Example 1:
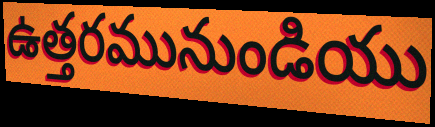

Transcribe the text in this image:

ఉత్తరమునుండియు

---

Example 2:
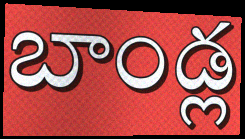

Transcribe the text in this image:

బాండ్ల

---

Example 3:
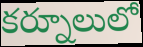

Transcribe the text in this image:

కర్నూలులో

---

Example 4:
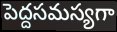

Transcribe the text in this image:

పెద్దసమస్యగా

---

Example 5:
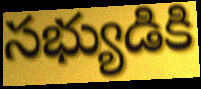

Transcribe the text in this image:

సభ్యుడికి